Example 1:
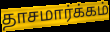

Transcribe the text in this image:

தாசமார்க்கம்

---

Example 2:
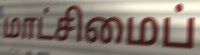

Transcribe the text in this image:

மாட்சிமைப்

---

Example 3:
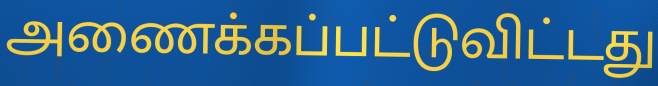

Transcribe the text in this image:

அணைக்கப்பட்டுவிட்டது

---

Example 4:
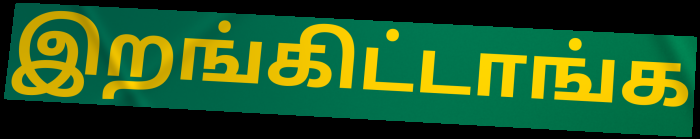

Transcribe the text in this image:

இறங்கிட்டாங்க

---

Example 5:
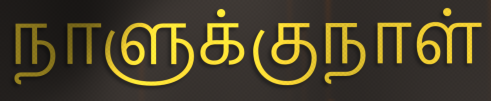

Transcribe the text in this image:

நாளுக்குநாள்